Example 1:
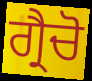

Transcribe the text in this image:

ਗ੍ਰੈਚੋ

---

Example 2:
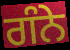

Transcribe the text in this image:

ਗੰਨੇ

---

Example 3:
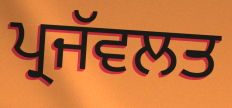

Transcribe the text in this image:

ਪ੍ਰਜੱਵਲਤ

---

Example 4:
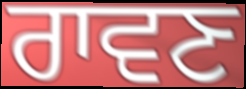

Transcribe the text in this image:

ਰਾਵਣ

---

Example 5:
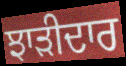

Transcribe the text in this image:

ਝਾੜੀਦਾਰ